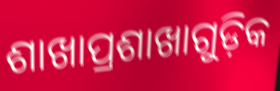
ଶାଖାପ୍ରଶାଖାଗୁଡ଼ିକ